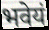
भवेयं